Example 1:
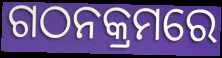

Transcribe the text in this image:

ଗଠନକ୍ରମରେ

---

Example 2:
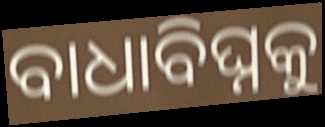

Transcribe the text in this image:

ବାଧାବିଘ୍ନକୁ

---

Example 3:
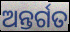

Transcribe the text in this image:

ଅନ୍ତର୍ଗତ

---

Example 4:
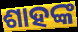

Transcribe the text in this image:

ଶାହଙ୍କ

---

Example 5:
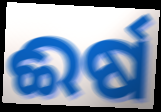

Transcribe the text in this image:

ଈର୍ଷ